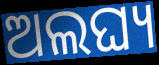
ଅଲଘ୍ୟ